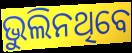
ଭୁଲିନଥିବେ